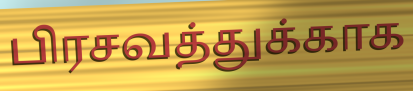
பிரசவத்துக்காக